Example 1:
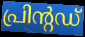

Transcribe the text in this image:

പ്രിന്റഡ്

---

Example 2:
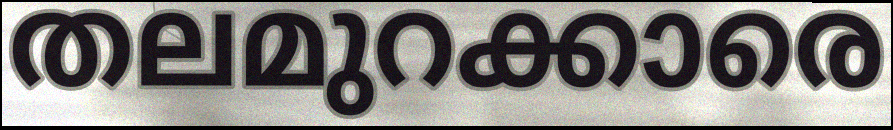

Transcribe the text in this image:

തലമുറക്കാരെ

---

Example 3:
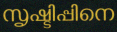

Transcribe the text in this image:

സൃഷ്ടിപ്പിനെ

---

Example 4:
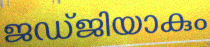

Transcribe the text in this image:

ജഡ്ജിയാകും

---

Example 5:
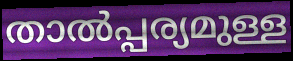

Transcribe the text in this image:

താൽപ്പര്യമുള്ള